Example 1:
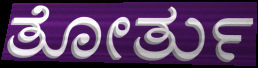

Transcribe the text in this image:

ತೋರ್ತು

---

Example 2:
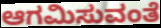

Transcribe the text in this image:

ಆಗಮಿಸುವಂತೆ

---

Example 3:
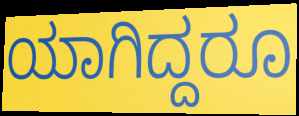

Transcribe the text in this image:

ಯಾಗಿದ್ದರೂ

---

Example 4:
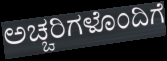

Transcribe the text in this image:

ಅಚ್ಚರಿಗಳೊಂದಿಗೆ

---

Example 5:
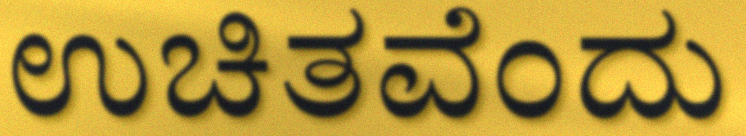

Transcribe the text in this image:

ಉಚಿತವೆಂದು